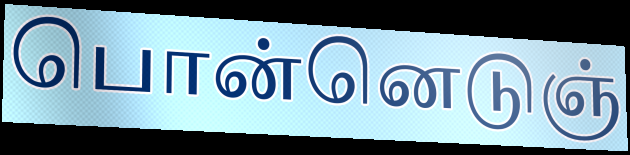
பொன்னெடுஞ்